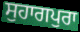
ਸੁਹਾਗਪੁਰਾ